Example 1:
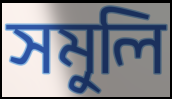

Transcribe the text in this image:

সমুলি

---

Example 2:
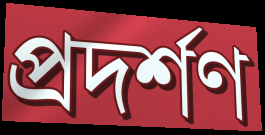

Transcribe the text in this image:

প্ৰদৰ্শণ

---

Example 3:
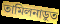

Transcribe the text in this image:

তামিলনাডুত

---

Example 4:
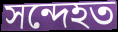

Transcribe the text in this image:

সন্দেহত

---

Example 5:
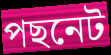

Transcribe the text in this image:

পছনেট